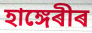
হাঙ্গেৰীৰ